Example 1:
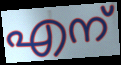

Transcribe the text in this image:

എന്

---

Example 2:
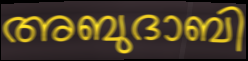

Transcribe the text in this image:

അബുദാബി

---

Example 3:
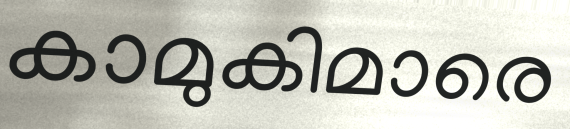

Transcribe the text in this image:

കാമുകിമാരെ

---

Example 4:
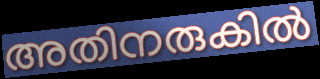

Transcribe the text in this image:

അതിനരുകിൽ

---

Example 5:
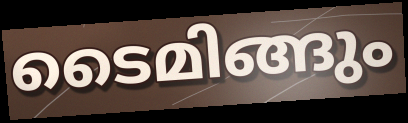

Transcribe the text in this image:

ടൈമിങ്ങും